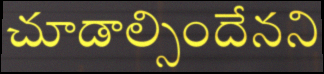
చూడాల్సిందేనని